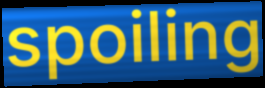
spoiling